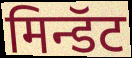
मिन्डॅट